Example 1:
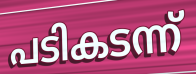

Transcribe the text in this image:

പടികടന്ന്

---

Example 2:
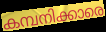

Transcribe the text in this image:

കമ്പനിക്കാരെ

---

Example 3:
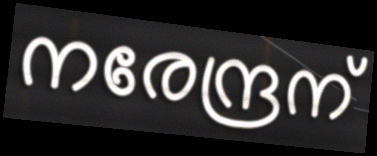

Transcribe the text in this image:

നരേന്ദ്രന്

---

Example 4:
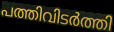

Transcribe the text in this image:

പത്തിവിടർത്തി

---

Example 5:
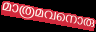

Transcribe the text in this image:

മാത്രമവനൊരു